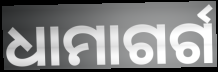
ଧାମାଗର୍ଗ